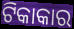
ଟିକାକାର